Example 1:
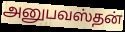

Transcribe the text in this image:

அனுபவஸ்தன்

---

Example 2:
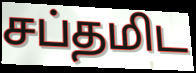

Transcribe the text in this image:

சப்தமிட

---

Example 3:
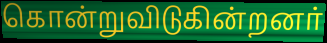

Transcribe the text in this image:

கொன்றுவிடுகின்றனர்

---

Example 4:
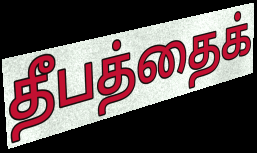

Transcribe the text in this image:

தீபத்தைக்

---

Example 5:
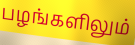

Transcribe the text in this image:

பழங்களிலும்